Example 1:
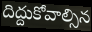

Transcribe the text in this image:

దిద్దుకోవాల్సిన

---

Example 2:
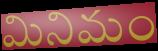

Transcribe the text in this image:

మినిమం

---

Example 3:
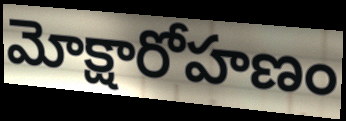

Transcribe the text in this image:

మోక్షారోహణం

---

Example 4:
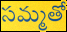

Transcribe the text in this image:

సమ్మతో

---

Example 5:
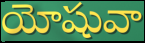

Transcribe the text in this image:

యోషువా